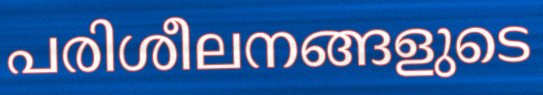
പരിശീലനങ്ങളുടെ